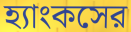
হ্যাংকসের